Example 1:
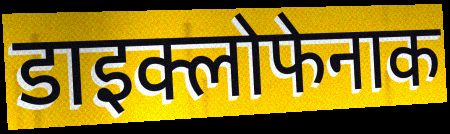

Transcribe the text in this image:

डाइक्लोफेनाक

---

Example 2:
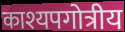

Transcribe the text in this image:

काश्यपगोत्रीय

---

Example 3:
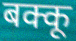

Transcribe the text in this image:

बक्कू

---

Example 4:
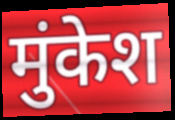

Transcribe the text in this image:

मुंकेश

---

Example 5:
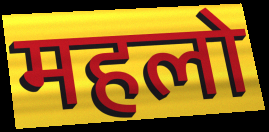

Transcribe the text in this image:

महलो